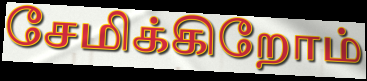
சேமிக்கிறோம்